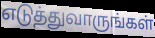
எடுத்துவாருங்கள்